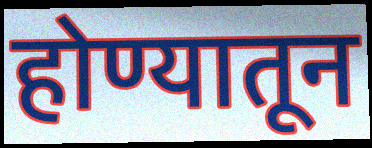
होण्यातून